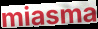
miasma